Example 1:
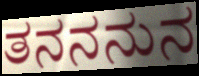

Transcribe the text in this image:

ತನನನುನ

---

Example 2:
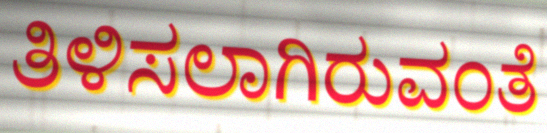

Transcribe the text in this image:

ತಿಳಿಸಲಾಗಿರುವಂತೆ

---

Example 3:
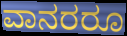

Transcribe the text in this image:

ವಾನರರೂ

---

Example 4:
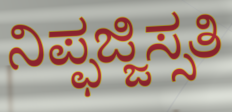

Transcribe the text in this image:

ನಿಪ್ಫಜ್ಜಿಸ್ಸತಿ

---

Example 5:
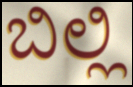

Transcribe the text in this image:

ಬಿಲ್ಲಿ